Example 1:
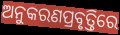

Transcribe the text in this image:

ଅନୁକରଣପ୍ରବୃତ୍ତିରେ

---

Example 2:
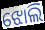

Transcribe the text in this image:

ଝୋଲି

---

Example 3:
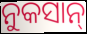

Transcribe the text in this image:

ନୁକସାନ୍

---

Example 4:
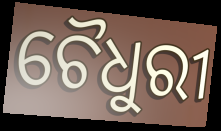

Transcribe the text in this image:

ଚୈଧୁରୀ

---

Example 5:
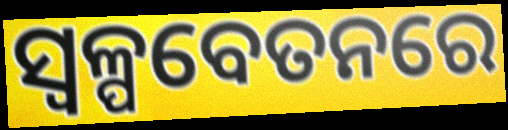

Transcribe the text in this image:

ସ୍ୱଳ୍ପବେତନରେ